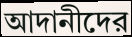
আদানীদের